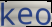
keo